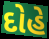
દોહે